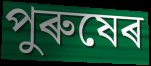
পুৰুষেৰ